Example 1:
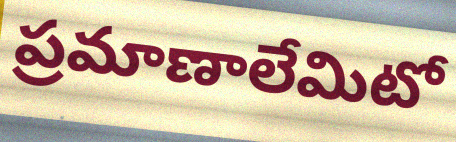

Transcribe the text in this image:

ప్రమాణాలేమిటో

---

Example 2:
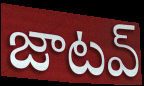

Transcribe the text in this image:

జాటవ్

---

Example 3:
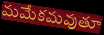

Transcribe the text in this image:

మమేకమవుతూ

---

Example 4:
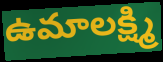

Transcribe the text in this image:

ఉమాలక్ష్మి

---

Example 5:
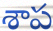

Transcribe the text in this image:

శాప